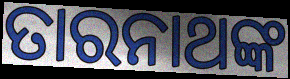
ତାରନାଥଙ୍କ